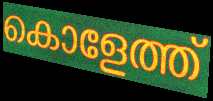
കൊളേത്ത്